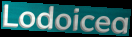
Lodoicea